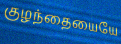
குழந்தையையே